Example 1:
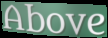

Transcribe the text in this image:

Above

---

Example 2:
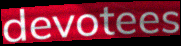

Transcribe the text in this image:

devotees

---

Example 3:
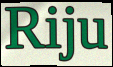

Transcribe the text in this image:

Riju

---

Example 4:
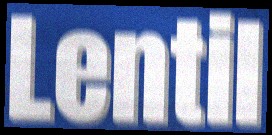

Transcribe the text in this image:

Lentil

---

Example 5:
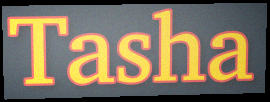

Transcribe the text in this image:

Tasha